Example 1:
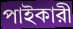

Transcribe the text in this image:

পাইকারী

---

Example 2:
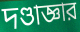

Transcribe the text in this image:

দণ্ডাজ্ঞার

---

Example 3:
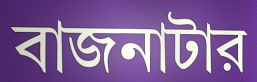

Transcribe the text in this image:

বাজনাটার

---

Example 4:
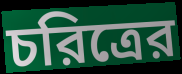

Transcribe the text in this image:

চরিত্রের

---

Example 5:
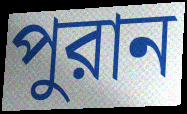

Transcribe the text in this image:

পুরান